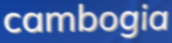
cambogia